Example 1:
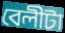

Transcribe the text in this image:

বেলীটা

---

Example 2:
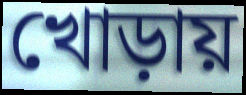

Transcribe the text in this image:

খোড়ায়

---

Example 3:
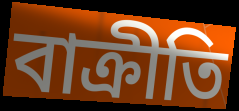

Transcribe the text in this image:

বাক্রীতি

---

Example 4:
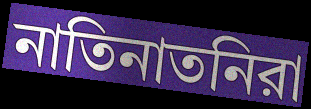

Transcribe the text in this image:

নাতিনাতনিরা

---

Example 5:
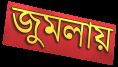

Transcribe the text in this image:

জুমলায়